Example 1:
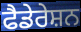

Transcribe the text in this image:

ਫੈਡੇਰੇਸ਼ਨ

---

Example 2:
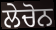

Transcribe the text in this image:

ਲੇਚੋਨ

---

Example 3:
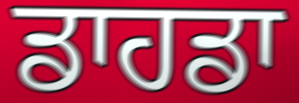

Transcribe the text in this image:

ਡਾਹਡਾ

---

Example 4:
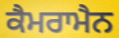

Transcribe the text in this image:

ਕੈਮਰਾਮੈਨ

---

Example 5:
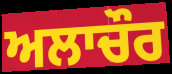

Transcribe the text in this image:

ਅਲਾਚੌਰ